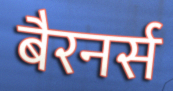
बैरनर्स